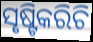
ସୃଷ୍ଟିକରିଚି